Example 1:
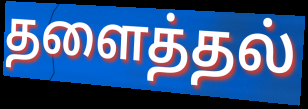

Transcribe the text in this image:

தளைத்தல்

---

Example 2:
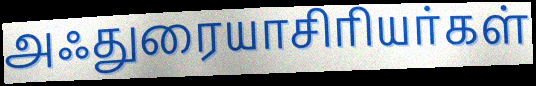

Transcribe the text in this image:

அஃதுரையாசிரியர்கள்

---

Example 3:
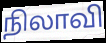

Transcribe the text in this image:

நிலாவி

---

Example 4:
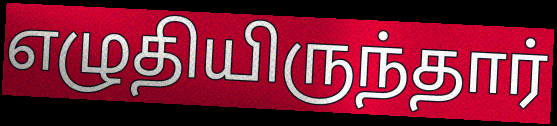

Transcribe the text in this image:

எழுதியிருந்தார்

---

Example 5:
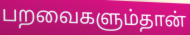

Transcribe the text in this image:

பறவைகளும்தான்